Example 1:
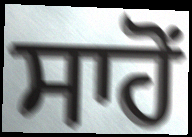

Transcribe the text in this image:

ਸਾਹੋਂ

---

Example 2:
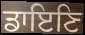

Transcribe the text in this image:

ਡਾਇਣਿ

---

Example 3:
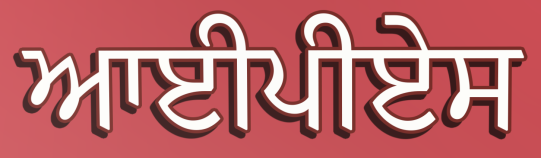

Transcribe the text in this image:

ਆਈਪੀਏਸ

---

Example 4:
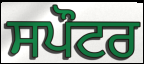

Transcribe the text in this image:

ਸਪੌਟਰ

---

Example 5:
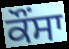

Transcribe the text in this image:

ਕੌਂਸਾ